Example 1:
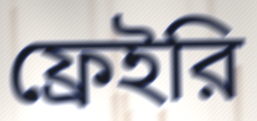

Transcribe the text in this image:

ফ্রেইরি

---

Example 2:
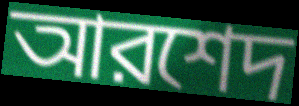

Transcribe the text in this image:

আরশেদ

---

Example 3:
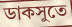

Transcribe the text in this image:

ডাকসুতে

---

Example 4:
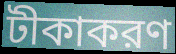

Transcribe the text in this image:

টীকাকরণ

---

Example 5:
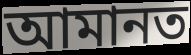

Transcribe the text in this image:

আমানত